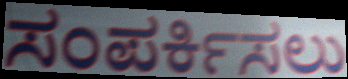
ಸಂಪರ್ಕಿಸಲು